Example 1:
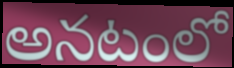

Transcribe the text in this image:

అనటంలో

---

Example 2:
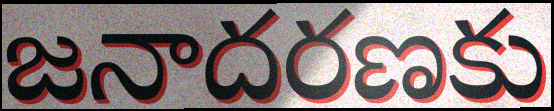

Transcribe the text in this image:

జనాదరణకు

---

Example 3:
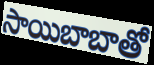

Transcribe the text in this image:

సాయిబాబాతో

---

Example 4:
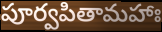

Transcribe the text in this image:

పూర్వపితామహాః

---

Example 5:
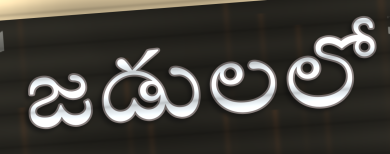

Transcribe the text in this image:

జడులలో